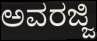
ಅವರಜ್ಜಿ